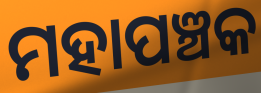
ମହାପଞ୍ଚକ